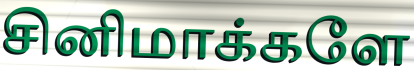
சினிமாக்களே